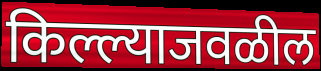
किल्ल्याजवळील